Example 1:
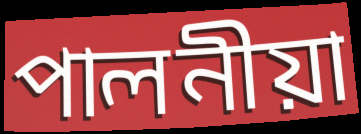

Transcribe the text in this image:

পালনীয়া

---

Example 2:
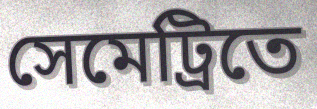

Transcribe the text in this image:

সেমেট্রিতে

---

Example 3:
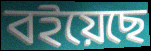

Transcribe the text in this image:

বইয়েছে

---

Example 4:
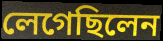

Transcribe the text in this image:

লেগেছিলেন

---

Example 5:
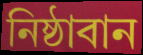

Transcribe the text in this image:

নিষ্ঠাবান